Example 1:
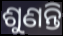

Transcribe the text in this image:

ଶୁଣନ୍ତି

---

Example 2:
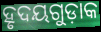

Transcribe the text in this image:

ହୃଦୟଗୁଡ଼ାକ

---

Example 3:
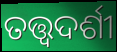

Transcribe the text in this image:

ତତ୍ତ୍ଵଦର୍ଶୀ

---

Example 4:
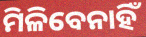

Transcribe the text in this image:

ମିଳିବେନାହିଁ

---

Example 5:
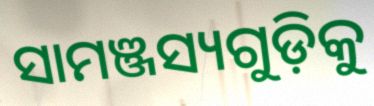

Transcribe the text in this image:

ସାମଞ୍ଜସ୍ୟଗୁଡ଼ିକୁ